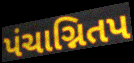
પંચાગ્નિતપ